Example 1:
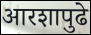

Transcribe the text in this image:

आरशापुढे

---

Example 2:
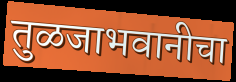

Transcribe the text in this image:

तुळजाभवानीचा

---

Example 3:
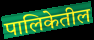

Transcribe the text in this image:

पालिकेतील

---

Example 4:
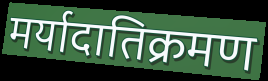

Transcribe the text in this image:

मर्यादातिक्रमण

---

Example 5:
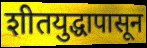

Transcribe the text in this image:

शीतयुद्धापासून